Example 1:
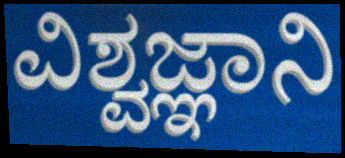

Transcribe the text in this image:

ವಿಶ್ವಜ್ಞಾನಿ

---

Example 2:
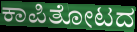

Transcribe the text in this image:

ಕಾಪಿತೋಟದ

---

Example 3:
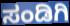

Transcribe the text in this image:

ಸಂಡಿಗಿ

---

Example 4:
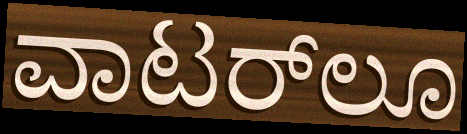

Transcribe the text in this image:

ವಾಟರ್‌ಲೂ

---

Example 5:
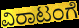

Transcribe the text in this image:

ವಿರಾಟಂಗೆ